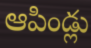
ఆపిండ్లు